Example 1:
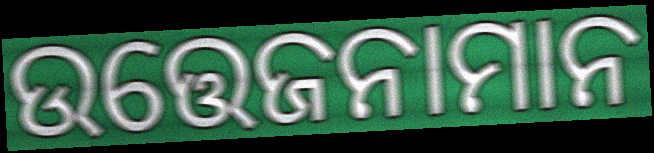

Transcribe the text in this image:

ଉତ୍ତେଜନାମାନ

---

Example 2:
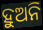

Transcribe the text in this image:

ହୁଅନି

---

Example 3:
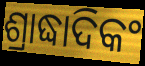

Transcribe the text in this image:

ଶ୍ରାଦ୍ଧାଦିକଂ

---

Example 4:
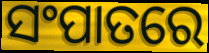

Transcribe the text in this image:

ସଂପାତରେ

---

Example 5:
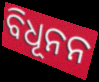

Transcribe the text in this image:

ବିଧୂନନ